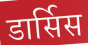
डार्सिस